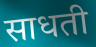
साधती